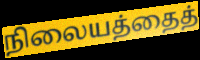
நிலையத்தைத்